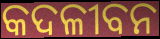
କଦଳୀବନ